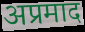
अप्रमाद